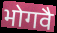
भोगवै